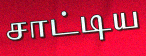
சாட்டிய